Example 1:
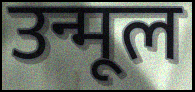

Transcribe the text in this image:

उन्मूल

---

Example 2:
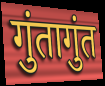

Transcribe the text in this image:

गुंतागुंत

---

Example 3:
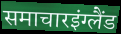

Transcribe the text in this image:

समाचारइंग्लैंड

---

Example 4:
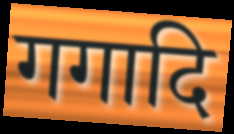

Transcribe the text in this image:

गगादि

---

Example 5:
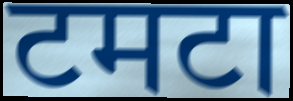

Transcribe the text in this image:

टमटा